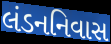
લંડનનિવાસ